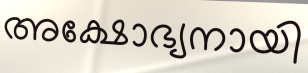
അക്ഷോഭ്യനായി